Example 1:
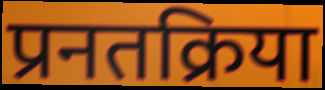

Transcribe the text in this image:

प्रनतक्रिया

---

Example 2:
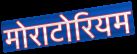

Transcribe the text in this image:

मोराटोरियम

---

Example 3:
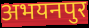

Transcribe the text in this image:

अभयनपुर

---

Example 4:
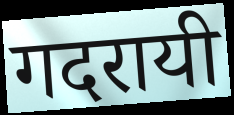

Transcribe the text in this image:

गदरायी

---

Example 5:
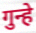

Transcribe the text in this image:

गुन्हे